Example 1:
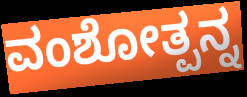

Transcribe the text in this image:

ವಂಶೋತ್ಪನ್ನ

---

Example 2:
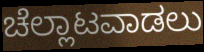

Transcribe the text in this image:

ಚೆಲ್ಲಾಟವಾಡಲು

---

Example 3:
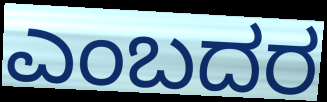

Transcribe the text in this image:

ಎಂಬದರ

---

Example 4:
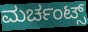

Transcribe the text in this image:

ಮರ್ಚಂಟ್ಸ್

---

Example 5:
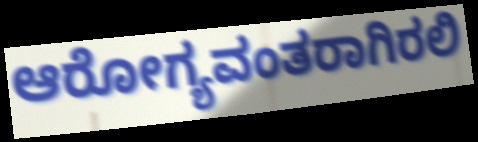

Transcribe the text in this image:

ಆರೋಗ್ಯವಂತರಾಗಿರಲಿ